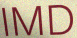
IMD